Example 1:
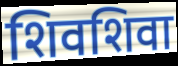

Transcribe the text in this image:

शिवशिवा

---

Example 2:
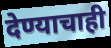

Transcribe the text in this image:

देण्याचाही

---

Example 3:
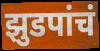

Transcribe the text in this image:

झुडपांचं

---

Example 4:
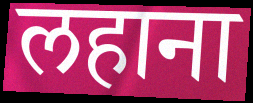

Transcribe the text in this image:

लहाना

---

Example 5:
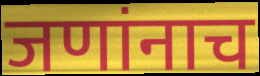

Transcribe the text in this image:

जणांनाच